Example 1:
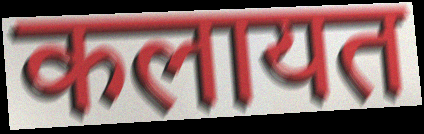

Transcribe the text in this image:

कलायत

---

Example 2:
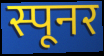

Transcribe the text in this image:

स्पूनर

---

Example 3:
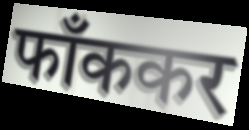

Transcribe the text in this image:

फाँककर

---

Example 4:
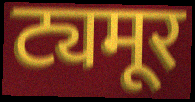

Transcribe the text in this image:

ट्यमूर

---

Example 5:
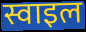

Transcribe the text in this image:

स्वाइल